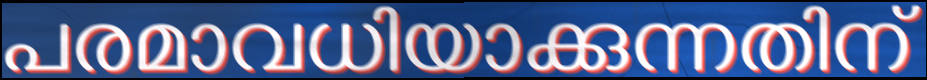
പരമാവധിയാക്കുന്നതിന്